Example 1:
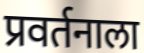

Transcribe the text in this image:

प्रवर्तनाला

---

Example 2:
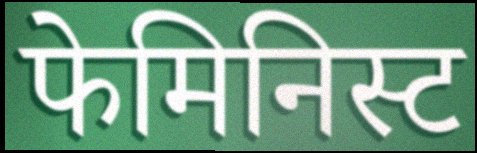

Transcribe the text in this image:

फेमिनिस्ट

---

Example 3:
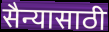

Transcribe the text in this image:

सैन्यासाठी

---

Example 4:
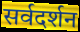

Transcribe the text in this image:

सर्वदर्शन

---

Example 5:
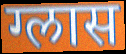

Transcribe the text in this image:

ग्लास